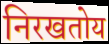
निरखतोय